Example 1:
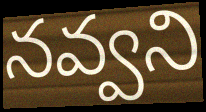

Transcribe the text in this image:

నవ్వని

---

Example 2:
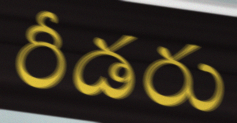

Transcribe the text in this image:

రీడరు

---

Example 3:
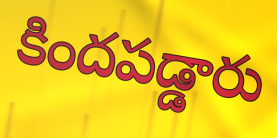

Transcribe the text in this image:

కిందపడ్డారు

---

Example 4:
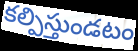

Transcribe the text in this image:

కల్పిస్తుండటం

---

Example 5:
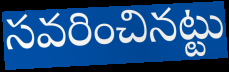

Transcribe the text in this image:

సవరించినట్టు